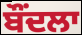
ਬੌਂਦਲਾ